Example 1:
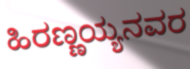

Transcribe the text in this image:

ಹಿರಣ್ಣಯ್ಯನವರ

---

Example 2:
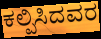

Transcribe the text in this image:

ಕಲ್ಪಿಸಿದವರ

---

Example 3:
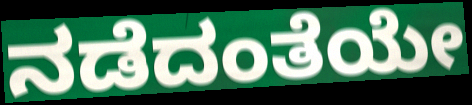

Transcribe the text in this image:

ನಡೆದಂತೆಯೇ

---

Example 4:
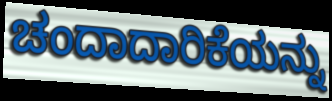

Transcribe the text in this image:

ಚಂದಾದಾರಿಕೆಯನ್ನು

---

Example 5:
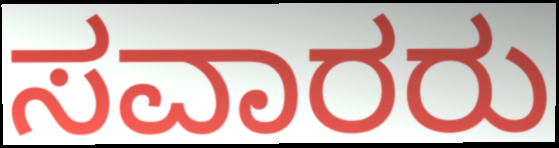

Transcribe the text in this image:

ಸವಾರರು